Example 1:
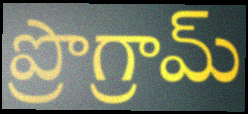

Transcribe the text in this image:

ప్రొగ్రామ్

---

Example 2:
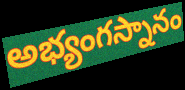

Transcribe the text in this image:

అభ్యంగస్నానం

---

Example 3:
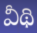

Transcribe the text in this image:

వీథి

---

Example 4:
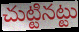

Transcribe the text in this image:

చుట్టినట్టు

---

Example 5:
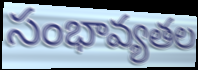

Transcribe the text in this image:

సంభావ్యతల